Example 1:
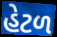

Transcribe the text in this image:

હેટળ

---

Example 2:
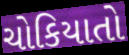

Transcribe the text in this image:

ચોકિયાતો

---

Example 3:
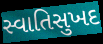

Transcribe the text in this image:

સ્વાતિસુખદ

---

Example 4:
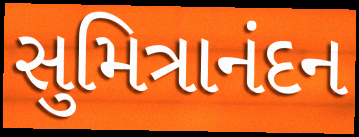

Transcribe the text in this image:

સુમિત્રાનંદન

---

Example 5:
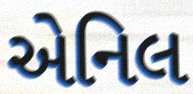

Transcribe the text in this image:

એનિલ